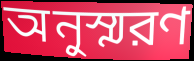
অনুস্মরণ